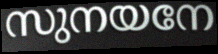
സുനയനേ